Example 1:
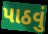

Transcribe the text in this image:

પાઠવું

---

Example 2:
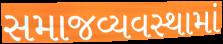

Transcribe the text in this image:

સમાજવ્યવસ્થામાં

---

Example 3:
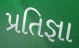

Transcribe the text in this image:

પ્રતિજ્ઞા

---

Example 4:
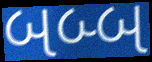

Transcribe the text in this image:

બબ્બ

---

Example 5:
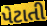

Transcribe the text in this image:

પેટાતી